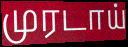
முரடாய்